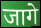
जागे